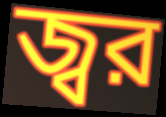
জ্বর